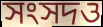
সংসদও